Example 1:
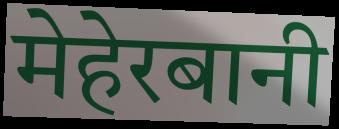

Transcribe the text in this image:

मेहेरबानी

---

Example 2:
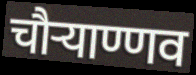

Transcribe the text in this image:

चौऱ्याण्णव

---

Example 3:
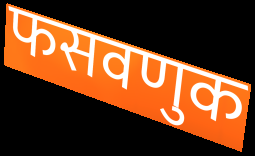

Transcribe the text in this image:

फसवणुक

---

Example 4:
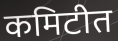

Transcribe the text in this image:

कमिटीत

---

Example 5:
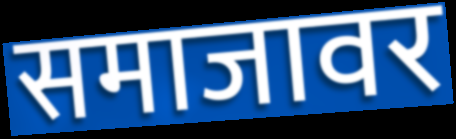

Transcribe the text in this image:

समाजावर